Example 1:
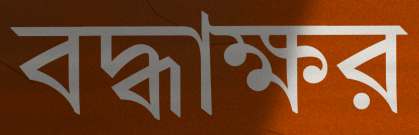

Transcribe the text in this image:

বদ্ধাক্ষর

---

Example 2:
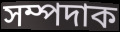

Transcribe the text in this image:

সম্পদাক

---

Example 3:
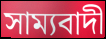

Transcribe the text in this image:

সাম্যবাদী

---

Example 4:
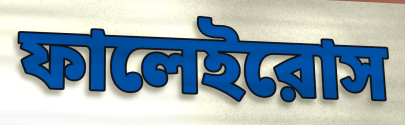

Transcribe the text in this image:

ফালেইরোস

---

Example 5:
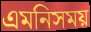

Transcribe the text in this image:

এমনিসময়